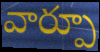
వార్పూ